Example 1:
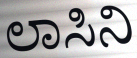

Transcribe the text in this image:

ಲಾಸಿನಿ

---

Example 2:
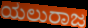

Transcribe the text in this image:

ಯಲುರಾಜ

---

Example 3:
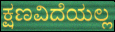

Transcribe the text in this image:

ಕ್ಷಣವಿದೆಯಲ್ಲ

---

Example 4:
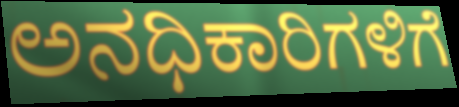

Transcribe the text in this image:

ಅನಧಿಕಾರಿಗಳಿಗೆ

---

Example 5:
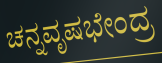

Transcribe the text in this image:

ಚನ್ನವೃಷಭೇಂದ್ರ